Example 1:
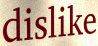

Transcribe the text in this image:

dislike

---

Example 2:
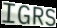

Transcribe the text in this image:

IGRS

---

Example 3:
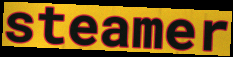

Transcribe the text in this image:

steamer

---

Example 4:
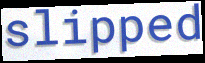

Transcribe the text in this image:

slipped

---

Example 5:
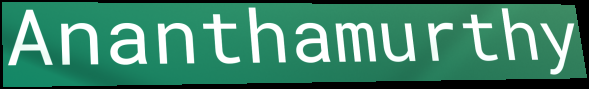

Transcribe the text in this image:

Ananthamurthy